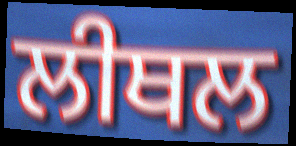
ਲੀਥਲ